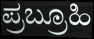
ಪ್ರಬ್ರೂಹಿ